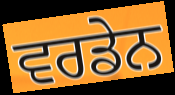
ਵਰਡੇਨ